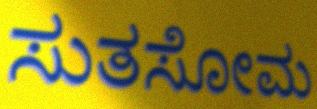
ಸುತಸೋಮ